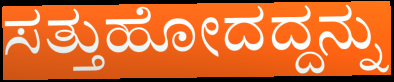
ಸತ್ತುಹೋದದ್ದನ್ನು